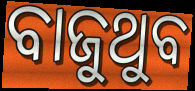
ବାଜୁଥୁବ